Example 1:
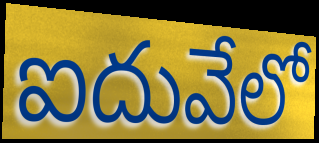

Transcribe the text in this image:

ఐదువేలో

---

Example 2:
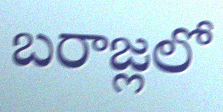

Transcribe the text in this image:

బరాజ్లలో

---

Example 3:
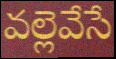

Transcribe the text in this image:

వల్లెవేసే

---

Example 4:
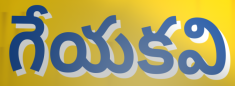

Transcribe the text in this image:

గేయకవి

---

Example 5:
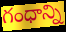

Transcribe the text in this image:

గంధాన్ని